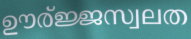
ഊര്ജ്ജസ്വലത